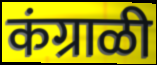
कंग्राळी